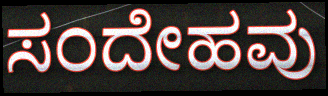
ಸಂದೇಹವು